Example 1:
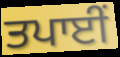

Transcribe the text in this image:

ਤਪਾਈਂ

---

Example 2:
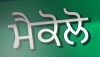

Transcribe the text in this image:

ਮੈਕੋਲੋ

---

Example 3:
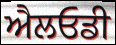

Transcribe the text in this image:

ਐਲਓਡੀ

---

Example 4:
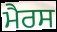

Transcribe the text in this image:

ਮੈਰਸ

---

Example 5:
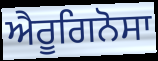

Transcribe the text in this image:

ਐਰੂਗਿਨੋਸਾ